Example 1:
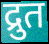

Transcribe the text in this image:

द्रुत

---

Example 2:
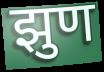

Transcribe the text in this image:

झुण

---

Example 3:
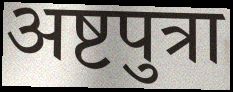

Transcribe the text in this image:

अष्टपुत्रा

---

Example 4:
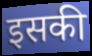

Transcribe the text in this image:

इसकी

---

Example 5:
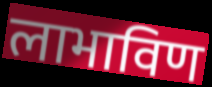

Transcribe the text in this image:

लाभाविण